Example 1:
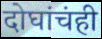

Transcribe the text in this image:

दोघांचंही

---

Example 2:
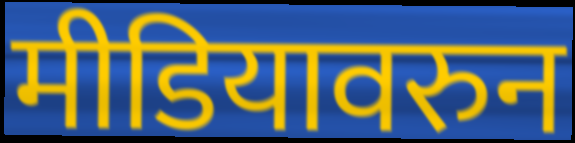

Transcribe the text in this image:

मीडियावरुन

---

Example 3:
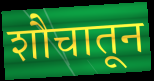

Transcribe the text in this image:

शौचातून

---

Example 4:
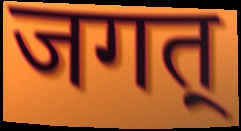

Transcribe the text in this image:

जगत्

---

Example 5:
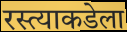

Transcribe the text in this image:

रस्त्याकडेला